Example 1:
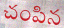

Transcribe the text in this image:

చంపిన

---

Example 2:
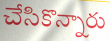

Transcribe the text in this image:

చేసికొన్నారు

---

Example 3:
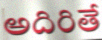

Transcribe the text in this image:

అదిరితే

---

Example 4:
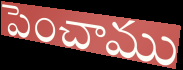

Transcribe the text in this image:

పెంచాము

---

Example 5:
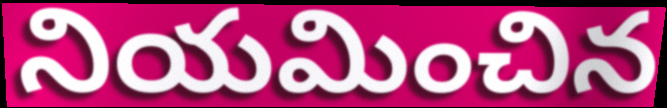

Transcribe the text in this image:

నియమించిన